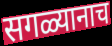
सगळ्यानाच